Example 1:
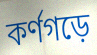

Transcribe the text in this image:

কর্ণগড়ে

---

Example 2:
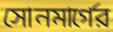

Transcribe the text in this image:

সোনমার্গের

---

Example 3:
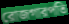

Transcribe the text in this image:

রোজগারপতি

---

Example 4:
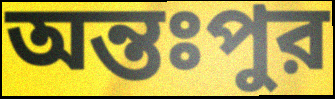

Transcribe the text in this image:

অন্তঃপুর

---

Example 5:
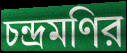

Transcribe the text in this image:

চন্দ্রমণির